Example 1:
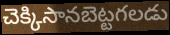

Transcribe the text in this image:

చెక్కిసానబెట్టగలడు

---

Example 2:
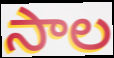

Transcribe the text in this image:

సాల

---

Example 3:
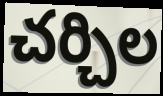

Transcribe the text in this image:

చర్చిల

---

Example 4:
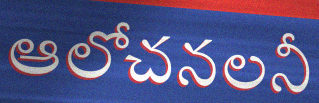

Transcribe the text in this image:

ఆలోచనలనీ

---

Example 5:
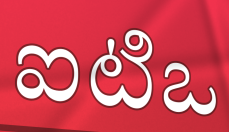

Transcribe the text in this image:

ఐటిఒ